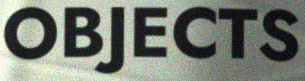
OBJECTS